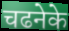
चढनेके